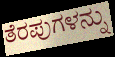
ತೆರಪುಗಳನ್ನು